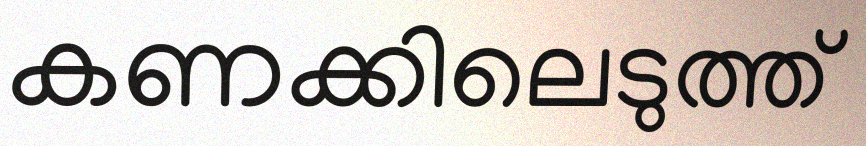
കണക്കിലെടുത്ത്